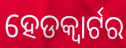
ହେଡକ୍ୱାର୍ଟର